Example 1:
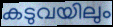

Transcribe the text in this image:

കടുവയിലും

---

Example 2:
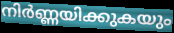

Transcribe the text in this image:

നിർണ്ണയിക്കുകയും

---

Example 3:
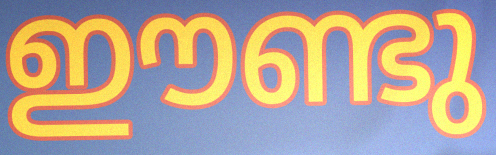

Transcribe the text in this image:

ഈണ്ടു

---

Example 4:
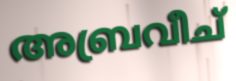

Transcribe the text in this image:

അബ്രവീച്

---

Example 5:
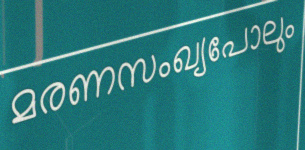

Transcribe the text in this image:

മരണസംഖ്യപോലും